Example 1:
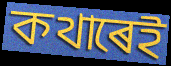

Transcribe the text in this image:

কথাৰেই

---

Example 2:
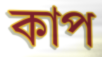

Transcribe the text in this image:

কাপ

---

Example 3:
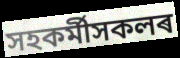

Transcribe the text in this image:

সহকৰ্মীসকলৰ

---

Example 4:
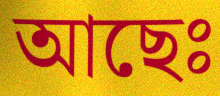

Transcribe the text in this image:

আছেঃ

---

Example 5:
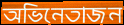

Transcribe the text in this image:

অভিনেতাজন